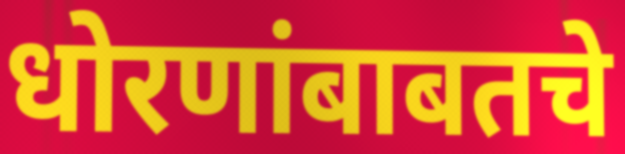
धोरणांबाबतचे